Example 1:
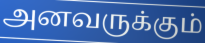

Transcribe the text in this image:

அனவருக்கும்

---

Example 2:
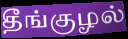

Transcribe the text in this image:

தீங்குழல்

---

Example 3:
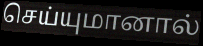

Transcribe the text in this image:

செய்யுமானால்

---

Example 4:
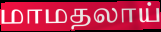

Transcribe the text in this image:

மாமதலாய்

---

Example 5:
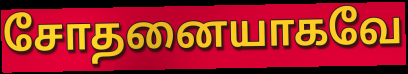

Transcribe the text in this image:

சோதனையாகவே